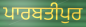
ਪਾਰਬਤੀਪੁਰ